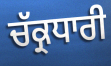
ਚੱਕ੍ਰਧਾਰੀ